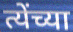
त्येंच्या